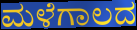
ಮಳೆಗಾಲದ